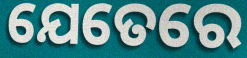
ଯେତେରେ